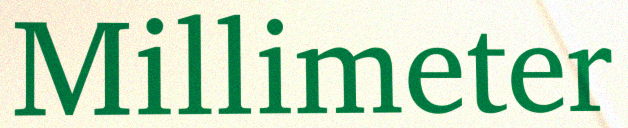
Millimeter